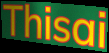
Thisai